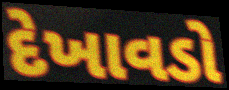
દેખાવડો